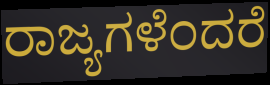
ರಾಜ್ಯಗಳೆಂದರೆ